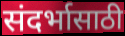
संदर्भासाठी